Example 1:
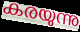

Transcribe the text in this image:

കരയുന്നു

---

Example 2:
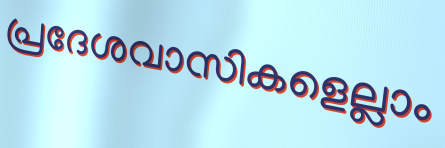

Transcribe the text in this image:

പ്രദേശവാസികളെല്ലാം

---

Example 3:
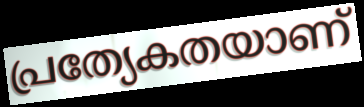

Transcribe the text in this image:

പ്രത്യേകതയാണ്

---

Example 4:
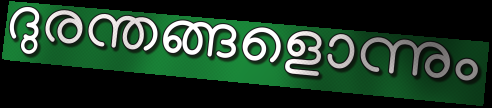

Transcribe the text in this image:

ദുരന്തങ്ങളൊന്നും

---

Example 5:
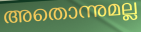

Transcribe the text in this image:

അതൊന്നുമല്ല